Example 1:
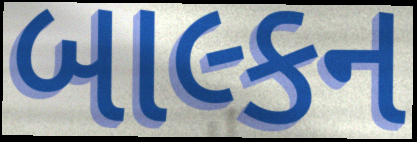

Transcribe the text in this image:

બાલ્કન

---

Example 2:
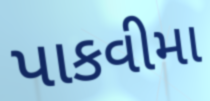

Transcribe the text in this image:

પાકવીમા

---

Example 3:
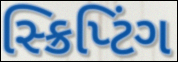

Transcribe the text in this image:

સ્ક્રિપ્ટિંગ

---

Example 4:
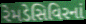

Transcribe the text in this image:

રેમડેસિવિરનાં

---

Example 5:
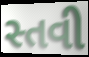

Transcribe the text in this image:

સ્તવી